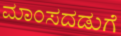
ಮಾಂಸದಡುಗೆ